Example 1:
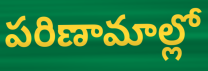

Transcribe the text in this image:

పరిణామాల్లో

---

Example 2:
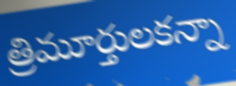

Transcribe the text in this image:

త్రిమూర్తులకన్నా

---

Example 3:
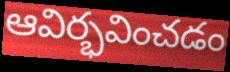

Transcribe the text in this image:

ఆవిర్భవించడం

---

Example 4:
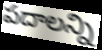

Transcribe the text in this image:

పదాలన్ని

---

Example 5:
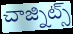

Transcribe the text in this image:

చాజ్నిట్స్